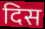
दिस